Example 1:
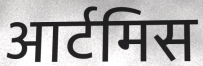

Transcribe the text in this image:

आर्टमिस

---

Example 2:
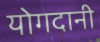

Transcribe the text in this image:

योगदानी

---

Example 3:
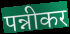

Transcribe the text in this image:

पन्नीकर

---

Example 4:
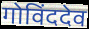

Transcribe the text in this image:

गोविंददेव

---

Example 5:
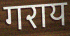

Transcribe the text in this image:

गराय